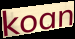
koan